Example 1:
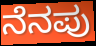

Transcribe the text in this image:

ನೆನಪು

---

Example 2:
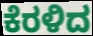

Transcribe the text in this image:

ಕೆರಳಿದ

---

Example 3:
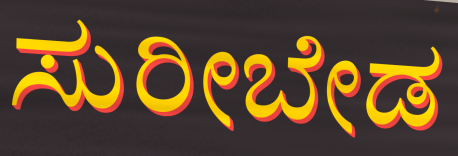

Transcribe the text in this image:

ಸುರೀಬೇಡ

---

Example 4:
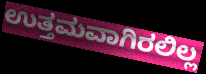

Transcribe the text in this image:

ಉತ್ತಮವಾಗಿರಲಿಲ್ಲ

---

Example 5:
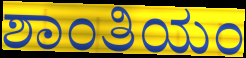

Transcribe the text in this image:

ಶಾಂತಿಯಂ